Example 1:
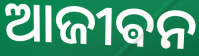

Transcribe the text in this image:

ଆଜୀଵନ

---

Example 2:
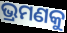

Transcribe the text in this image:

ଭ୍ରମଣକୁ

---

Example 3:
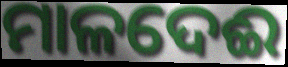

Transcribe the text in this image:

ମାଳଦେଈ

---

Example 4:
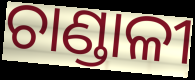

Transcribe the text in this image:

ଚାଣ୍ଡାଳୀ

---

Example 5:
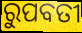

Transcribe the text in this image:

ରୁପବତୀ